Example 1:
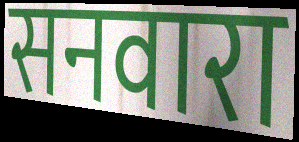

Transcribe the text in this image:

सनवारा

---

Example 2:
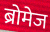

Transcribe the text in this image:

ब्रोमेज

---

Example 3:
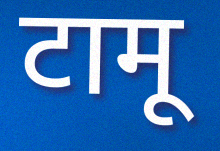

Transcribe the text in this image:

टामू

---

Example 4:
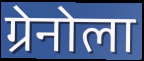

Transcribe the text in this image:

ग्रेनोला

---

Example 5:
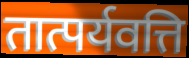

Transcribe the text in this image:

तात्पर्यवत्ति